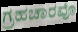
ಗ್ರಹಚಾರವೊ